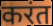
करंत